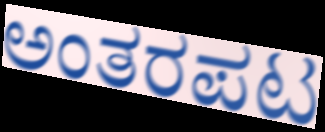
ಅಂತರಪಟ